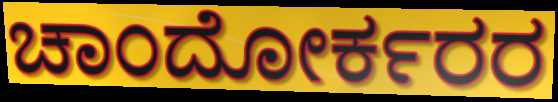
ಚಾಂದೋರ್ಕರರ